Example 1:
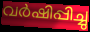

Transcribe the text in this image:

വർഷിപ്പിച്ചു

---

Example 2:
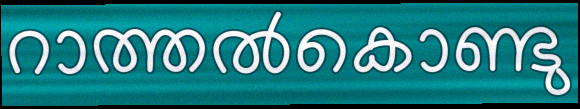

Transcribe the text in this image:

റാത്തൽകൊണ്ടു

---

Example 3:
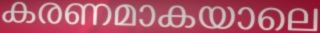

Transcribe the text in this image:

കരണമാകയാലെ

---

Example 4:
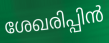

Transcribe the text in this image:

ശേഖരിപ്പിൻ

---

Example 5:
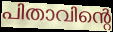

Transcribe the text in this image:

പിതാവിന്റെ